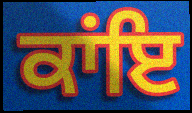
ਕਾਂਇ